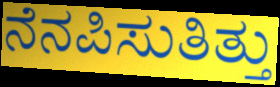
ನೆನಪಿಸುತಿತ್ತು